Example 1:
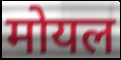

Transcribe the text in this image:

मोयल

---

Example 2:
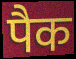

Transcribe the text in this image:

पैक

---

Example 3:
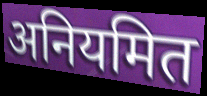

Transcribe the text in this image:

अनियमित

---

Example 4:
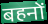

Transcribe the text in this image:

बहनों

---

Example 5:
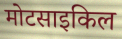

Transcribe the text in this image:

मोटसाइकिल